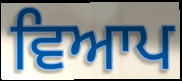
ਵਿਆਪ